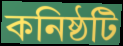
কনিষ্ঠটি